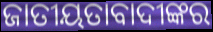
ଜାତୀୟତାବାଦୀଙ୍କର